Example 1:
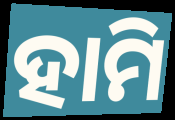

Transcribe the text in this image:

ହାମି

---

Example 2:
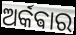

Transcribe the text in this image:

ଅର୍କଵାର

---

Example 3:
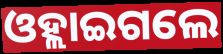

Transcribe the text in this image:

ଓହ୍ଲାଇଗଲେ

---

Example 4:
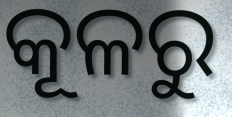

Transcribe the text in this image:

କୂଳରୁ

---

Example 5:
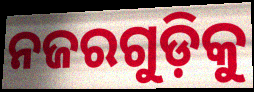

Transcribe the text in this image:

ନଜରଗୁଡ଼ିକୁ